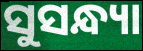
ସୁସନ୍ଧ୍ୟା